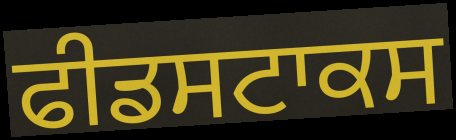
ਫੀਡਸਟਾਕਸ